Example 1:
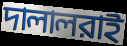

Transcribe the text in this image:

দালালরাই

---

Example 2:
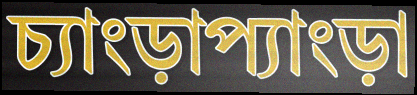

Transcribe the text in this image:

চ্যাংড়াপ্যাংড়া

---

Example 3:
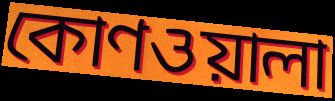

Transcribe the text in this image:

কোণওয়ালা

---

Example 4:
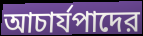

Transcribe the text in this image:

আচার্যপাদের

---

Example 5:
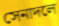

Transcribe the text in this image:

সেনাদলে